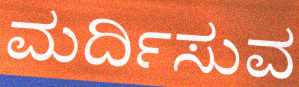
ಮರ್ದಿಸುವ